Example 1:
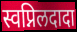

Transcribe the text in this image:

स्वप्निलदादा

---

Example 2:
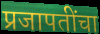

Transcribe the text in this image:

प्रजापतींचा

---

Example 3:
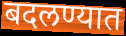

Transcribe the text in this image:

बदलण्यात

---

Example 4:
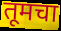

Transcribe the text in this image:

तूमचा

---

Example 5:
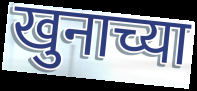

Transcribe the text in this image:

खुनाच्या